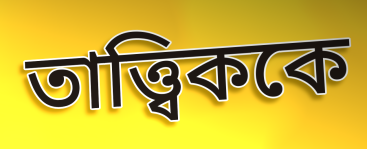
তাত্ত্বিককে